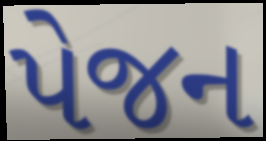
પેજન